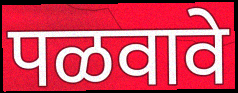
पळवावे